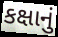
કક્ષાનું